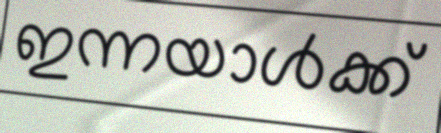
ഇന്നയാൾക്ക്